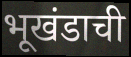
भूखंडाची